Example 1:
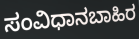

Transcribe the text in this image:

ಸಂವಿಧಾನಬಾಹಿರ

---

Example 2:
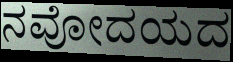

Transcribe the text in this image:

ನವೋದಯದ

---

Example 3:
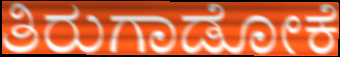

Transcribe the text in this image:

ತಿರುಗಾಡೋಕೆ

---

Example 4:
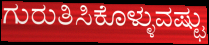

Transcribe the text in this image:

ಗುರುತಿಸಿಕೊಳ್ಳುವಷ್ಟು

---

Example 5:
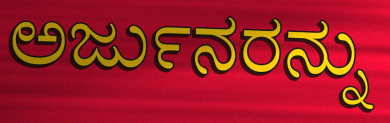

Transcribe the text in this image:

ಅರ್ಜುನರನ್ನು